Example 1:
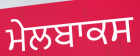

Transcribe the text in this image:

ਮੇਲਬਾਕਸ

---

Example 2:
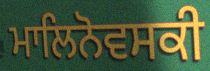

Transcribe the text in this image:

ਮਾਲਿਨੋਵਸਕੀ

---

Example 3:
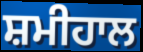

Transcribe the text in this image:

ਸ਼ਮੀਹਾਲ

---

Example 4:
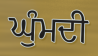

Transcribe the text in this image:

ਘੁੰਮਦੀ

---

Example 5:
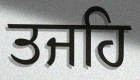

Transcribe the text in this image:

ਤਜਹਿ